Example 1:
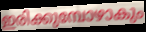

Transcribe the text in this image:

ഇരിക്കുമ്പോഴാകും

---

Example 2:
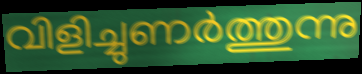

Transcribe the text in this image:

വിളിച്ചുണർത്തുന്നു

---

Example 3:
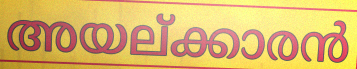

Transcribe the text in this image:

അയല്ക്കാരൻ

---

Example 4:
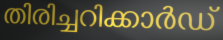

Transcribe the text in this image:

തിരിച്ചറിക്കാർഡ്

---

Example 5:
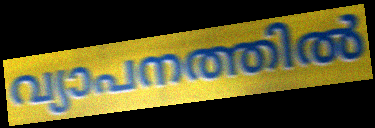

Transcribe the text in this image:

വ്യാപനത്തിൽ